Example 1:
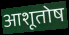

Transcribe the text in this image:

आशूतोष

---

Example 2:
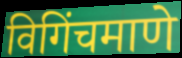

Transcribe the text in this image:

विगिंचमाणे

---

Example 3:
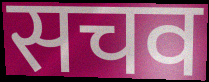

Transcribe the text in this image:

सचव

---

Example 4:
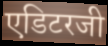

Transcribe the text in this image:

एडिटरजी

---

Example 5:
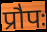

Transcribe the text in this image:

प्रौपः